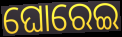
ଘୋରେଇ